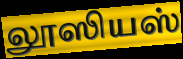
லூஸியஸ்